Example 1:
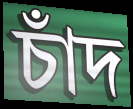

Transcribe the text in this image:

চাঁদ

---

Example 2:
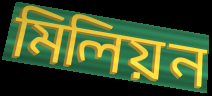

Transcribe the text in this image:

মিলিয়ন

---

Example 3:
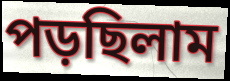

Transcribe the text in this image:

পড়ছিলাম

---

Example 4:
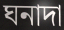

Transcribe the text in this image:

ঘনাদা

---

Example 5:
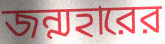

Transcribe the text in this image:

জন্মহারের